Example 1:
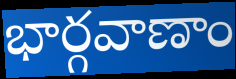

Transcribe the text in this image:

భార్గవాణాం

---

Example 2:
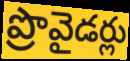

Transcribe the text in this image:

ప్రొవైడర్లు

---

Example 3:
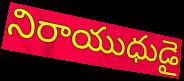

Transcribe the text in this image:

నిరాయుధుడై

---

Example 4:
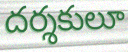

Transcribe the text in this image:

దర్శకులూ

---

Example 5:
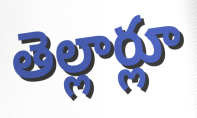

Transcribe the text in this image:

తెల్లార్లూ